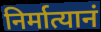
निर्मात्यानं